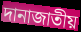
দানাজাতীয়